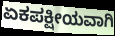
ಏಕಪಕ್ಷೀಯವಾಗಿ